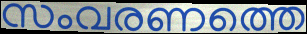
സംവരണത്തെ